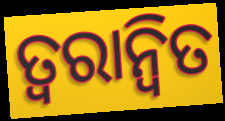
ତ୍ବରାନ୍ବିତ